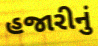
હજારીનું